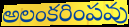
అలంకరింపవు